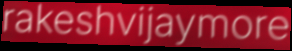
rakeshvijaymore